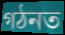
গঠনত